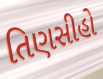
તિણસીહો